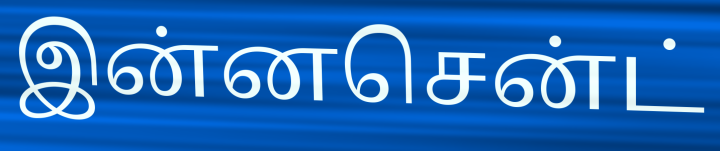
இன்னசென்ட்